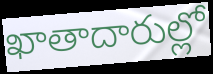
ఖాతాదారుల్లో